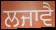
ਲਜਾਵੈ